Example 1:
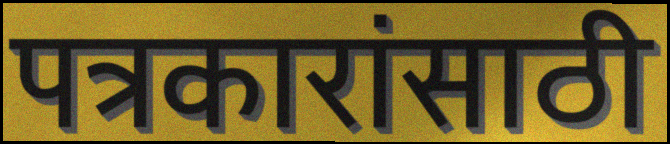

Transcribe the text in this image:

पत्रकारांसाठी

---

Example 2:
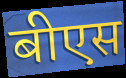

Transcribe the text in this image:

बीएस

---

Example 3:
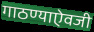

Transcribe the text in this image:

गाठण्याऐवजी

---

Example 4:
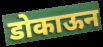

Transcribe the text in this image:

डोकाऊन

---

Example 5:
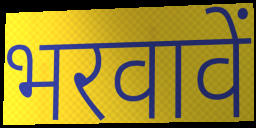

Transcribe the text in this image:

भरवावें